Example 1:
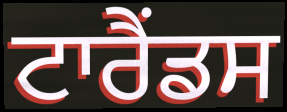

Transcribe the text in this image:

ਟਾਰੈਂਡਸ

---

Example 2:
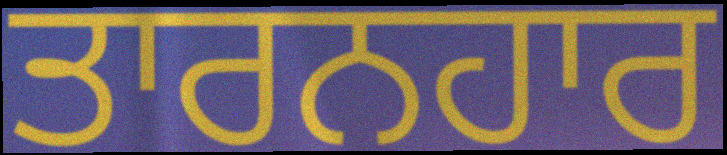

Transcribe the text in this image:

ਤਾਰਨਹਾਰ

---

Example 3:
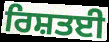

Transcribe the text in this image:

ਰਿਸ਼ਤਈ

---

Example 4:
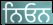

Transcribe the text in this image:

ਨਿਓਨ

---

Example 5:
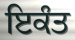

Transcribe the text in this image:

ਇਕੰਤ